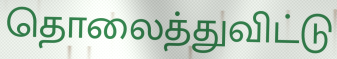
தொலைத்துவிட்டு